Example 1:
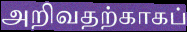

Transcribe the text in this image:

அறிவதற்காகப்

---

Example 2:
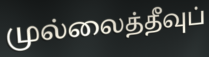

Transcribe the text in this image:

முல்லைத்தீவுப்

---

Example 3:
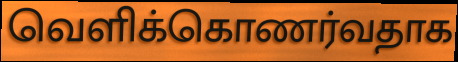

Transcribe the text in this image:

வெளிக்கொணர்வதாக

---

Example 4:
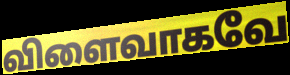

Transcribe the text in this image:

விளைவாகவே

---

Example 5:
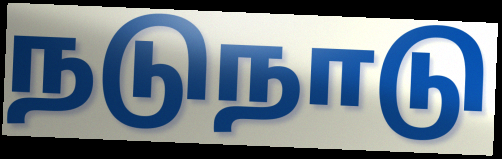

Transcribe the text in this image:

நடுநாடு